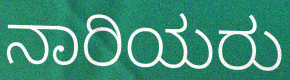
ನಾರಿಯರು